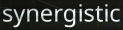
synergistic